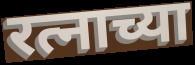
रत्नाच्या